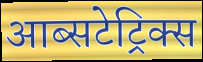
आब्सटेट्रिक्स